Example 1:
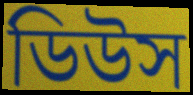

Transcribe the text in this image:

ডিউস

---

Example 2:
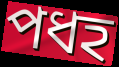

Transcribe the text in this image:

পধহ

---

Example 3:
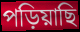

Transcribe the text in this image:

পড়িয়াছি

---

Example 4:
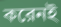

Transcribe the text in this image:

করেনই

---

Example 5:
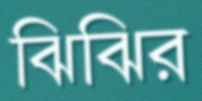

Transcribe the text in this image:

ঝিঝির